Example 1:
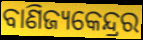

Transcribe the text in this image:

ବାଣିଜ୍ୟକେନ୍ଦ୍ରର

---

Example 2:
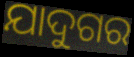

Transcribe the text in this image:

ଯାଦୁଗର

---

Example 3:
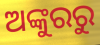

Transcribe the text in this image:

ଅଙ୍କୁରରୁ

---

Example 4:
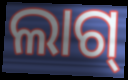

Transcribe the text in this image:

ଲାଗ୍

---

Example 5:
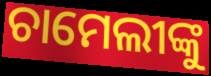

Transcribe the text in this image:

ଚାମେଲୀଙ୍କୁ